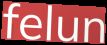
felun